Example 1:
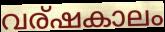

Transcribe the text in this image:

വര്ഷകാലം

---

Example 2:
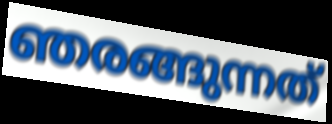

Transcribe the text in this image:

ഞരങ്ങുന്നത്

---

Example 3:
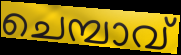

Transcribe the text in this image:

ചെമ്പാവ്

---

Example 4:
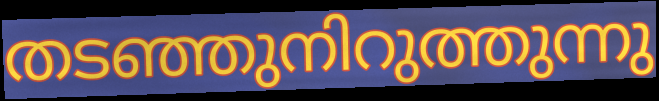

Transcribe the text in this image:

തടഞ്ഞുനിറുത്തുന്നു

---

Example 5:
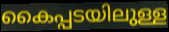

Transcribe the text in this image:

കൈപ്പടയിലുള്ള